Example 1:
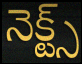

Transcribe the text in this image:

నెక్ట్స్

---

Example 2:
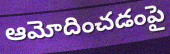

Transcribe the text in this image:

ఆమోదించడంపై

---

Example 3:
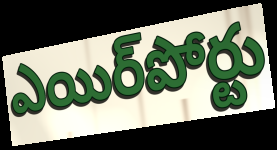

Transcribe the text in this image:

ఎయిర్‌పోర్టు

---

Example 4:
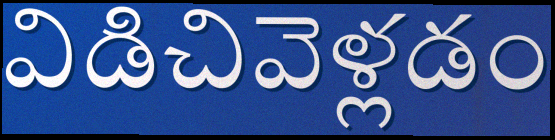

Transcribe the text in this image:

విడిచివెళ్లడం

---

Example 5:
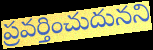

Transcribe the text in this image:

ప్రవర్తించుదునని